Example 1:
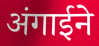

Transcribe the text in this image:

अंगाईने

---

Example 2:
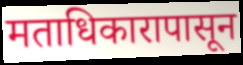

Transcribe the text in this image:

मताधिकारापासून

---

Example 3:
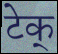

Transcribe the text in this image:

टेक्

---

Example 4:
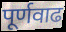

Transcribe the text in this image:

पूर्णवाढ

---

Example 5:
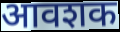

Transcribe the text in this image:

आवशक